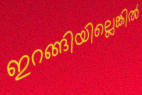
ഇറങ്ങിയില്ലെങ്കിൽ